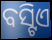
ବସ୍ଟିଏ